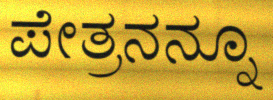
ಪೇತ್ರನನ್ನೂ